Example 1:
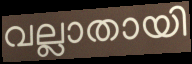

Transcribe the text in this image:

വല്ലാതായി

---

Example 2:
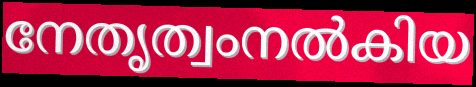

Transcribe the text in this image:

നേതൃത്വംനൽകിയ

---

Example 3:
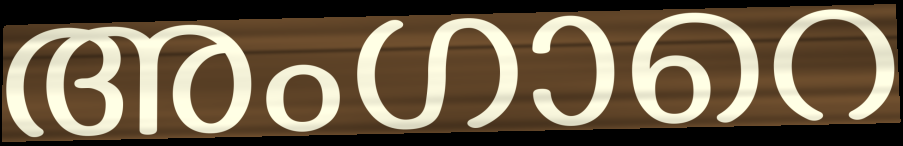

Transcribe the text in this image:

അംഗാറെ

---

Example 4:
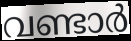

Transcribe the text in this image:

വണ്ടാർ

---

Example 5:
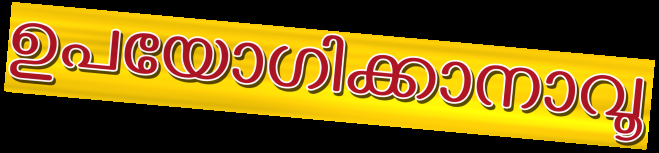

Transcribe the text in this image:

ഉപയോഗിക്കാനാവൂ